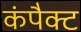
कंपैक्ट